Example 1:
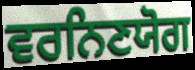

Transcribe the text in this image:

ਵਰਨਿਣਯੋਗ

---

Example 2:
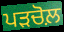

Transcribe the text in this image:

ਪੜਚੋਲ਼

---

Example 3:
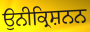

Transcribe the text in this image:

ਉਨੀਕ੍ਰਿਸ਼ਨਨ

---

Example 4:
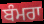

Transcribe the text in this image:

ਬੰਮਰਾ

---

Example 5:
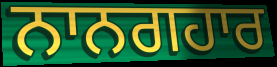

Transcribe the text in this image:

ਨਾਨਗਹਾਰ